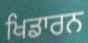
ਖਿਡਾਰਨ